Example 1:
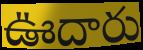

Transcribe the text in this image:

ఊదారు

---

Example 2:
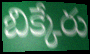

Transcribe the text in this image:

బిక్కేరు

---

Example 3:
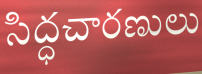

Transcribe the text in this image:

సిద్ధచారణులు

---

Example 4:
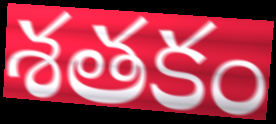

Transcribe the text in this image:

శతకం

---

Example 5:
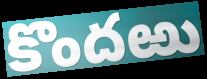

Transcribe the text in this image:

కొందఱు